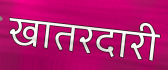
खातरदारी